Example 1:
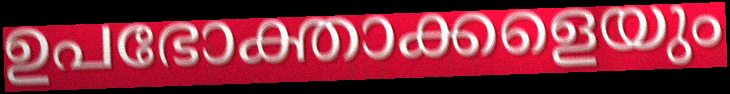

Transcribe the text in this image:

ഉപഭോക്താക്കളെയും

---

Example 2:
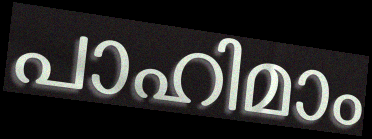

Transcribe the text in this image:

പാഹിമാം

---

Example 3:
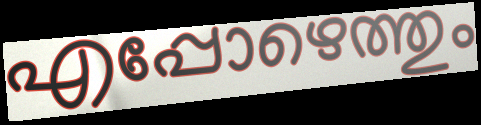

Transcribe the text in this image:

എപ്പോഴെത്തും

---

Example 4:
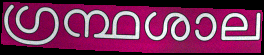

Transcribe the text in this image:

ഗ്രന്ഥശാല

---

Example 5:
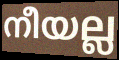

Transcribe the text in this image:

നീയല്ല